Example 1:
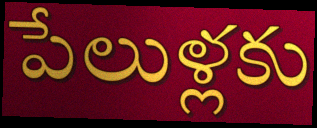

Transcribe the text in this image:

పేలుళ్లకు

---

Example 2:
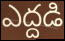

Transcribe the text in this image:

ఎద్దడి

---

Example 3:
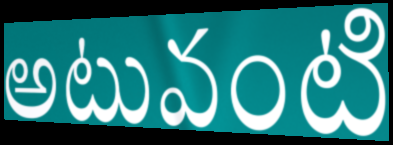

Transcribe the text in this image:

అటువంటి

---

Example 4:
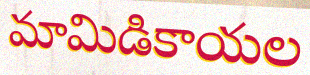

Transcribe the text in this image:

మామిడికాయల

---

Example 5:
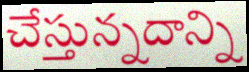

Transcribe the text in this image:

చేస్తున్నదాన్ని